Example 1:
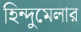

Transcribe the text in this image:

হিন্দুমেলার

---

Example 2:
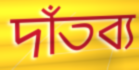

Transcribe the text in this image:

দাঁতব্য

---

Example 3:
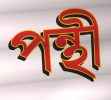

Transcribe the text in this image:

পন্থী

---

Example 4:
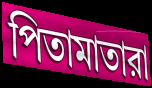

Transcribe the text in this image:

পিতামাতারা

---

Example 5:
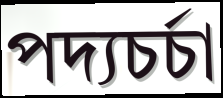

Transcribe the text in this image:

পদ্যচর্চা